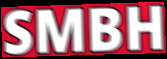
SMBH